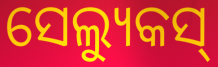
ସେଲ୍ୟୁକସ୍